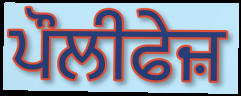
ਪੌਲੀਫੇਜ਼